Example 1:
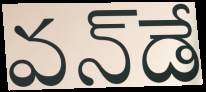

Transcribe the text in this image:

వన్‌డే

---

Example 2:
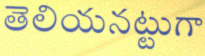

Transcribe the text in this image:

తెలియనట్టుగా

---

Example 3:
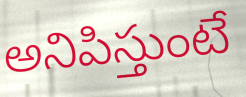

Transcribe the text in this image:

అనిపిస్తుంటే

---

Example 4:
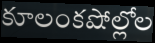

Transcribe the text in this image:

కూలంకషోల్లోల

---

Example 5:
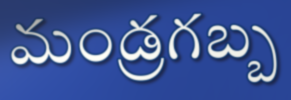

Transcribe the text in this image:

మండ్రగబ్బ